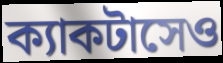
ক্যাকটাসেও